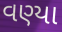
વણ્યા